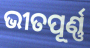
ଭୀତପୂର୍ଣ୍ଣ